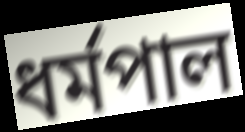
ধৰ্মপাল